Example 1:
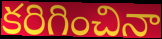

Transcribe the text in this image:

కరిగించినా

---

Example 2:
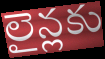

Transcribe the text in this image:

లైన్లకు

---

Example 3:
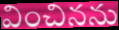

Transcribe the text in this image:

వించినను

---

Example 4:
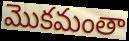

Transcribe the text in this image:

మొకమంతా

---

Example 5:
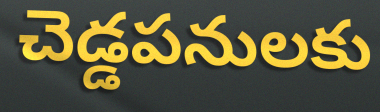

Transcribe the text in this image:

చెడ్డపనులకు